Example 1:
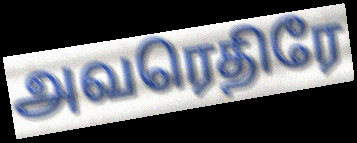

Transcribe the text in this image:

அவரெதிரே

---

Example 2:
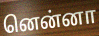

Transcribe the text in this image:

னென்னா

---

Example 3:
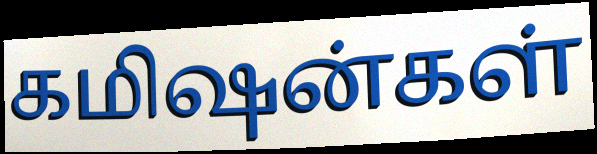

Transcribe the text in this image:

கமிஷன்கள்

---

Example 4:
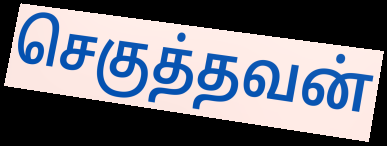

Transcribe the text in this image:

செகுத்தவன்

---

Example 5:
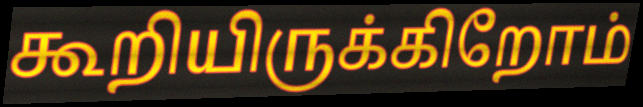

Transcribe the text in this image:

கூறியிருக்கிறோம்